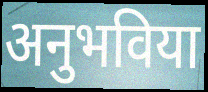
अनुभविया